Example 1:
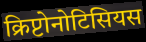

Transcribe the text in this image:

क्रिप्टोनोटिसियस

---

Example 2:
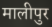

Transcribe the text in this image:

मालीपुर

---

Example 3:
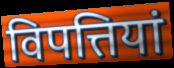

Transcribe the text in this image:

विपत्तियां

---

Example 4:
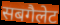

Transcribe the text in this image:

सबगैलेट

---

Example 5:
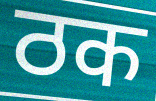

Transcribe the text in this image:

ठक